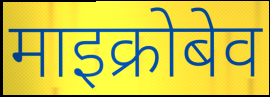
माइक्रोबेव